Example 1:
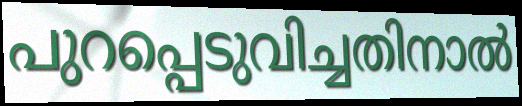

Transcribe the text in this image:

പുറപ്പെടുവിച്ചതിനാൽ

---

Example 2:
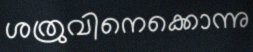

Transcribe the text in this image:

ശത്രുവിനെക്കൊന്നു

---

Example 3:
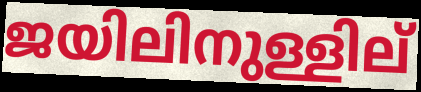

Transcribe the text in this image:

ജയിലിനുള്ളില്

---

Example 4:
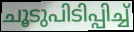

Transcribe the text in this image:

ചൂടുപിടിപ്പിച്ച്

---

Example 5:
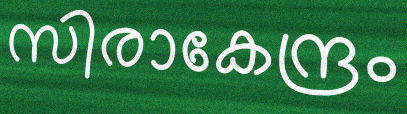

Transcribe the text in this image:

സിരാകേന്ദ്രം